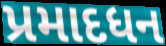
પ્રમાદધન